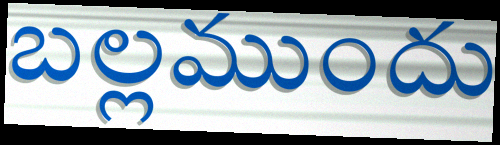
బల్లముందు